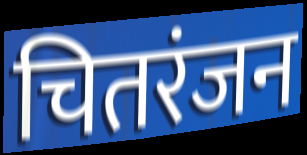
चितरंजन